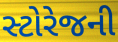
સ્ટોરેજની